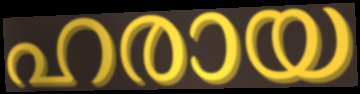
ഹരായ